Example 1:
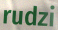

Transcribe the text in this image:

rudzi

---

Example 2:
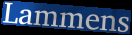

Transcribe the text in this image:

Lammens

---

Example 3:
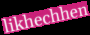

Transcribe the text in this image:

likhechhen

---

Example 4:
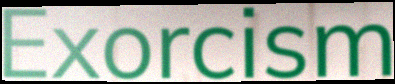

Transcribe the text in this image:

Exorcism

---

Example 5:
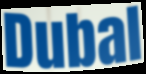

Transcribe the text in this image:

Dubal